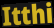
Itthi